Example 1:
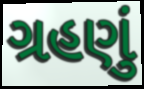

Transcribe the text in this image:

ગ્રહણું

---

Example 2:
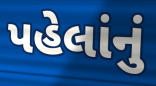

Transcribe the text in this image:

પહેલાંનું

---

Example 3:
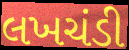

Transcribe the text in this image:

લખચંડી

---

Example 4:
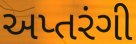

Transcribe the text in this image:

અપ્તરંગી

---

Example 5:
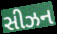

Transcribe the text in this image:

સીઝન